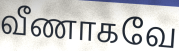
வீணாகவே